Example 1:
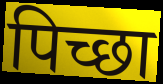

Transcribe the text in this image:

पिच्छा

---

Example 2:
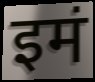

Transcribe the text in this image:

इमं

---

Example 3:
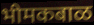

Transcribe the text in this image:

भीमकबाळ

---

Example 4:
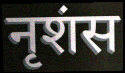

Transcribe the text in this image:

नृशंस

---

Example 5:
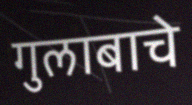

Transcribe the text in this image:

गुलाबाचे